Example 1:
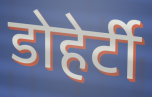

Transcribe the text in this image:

डोहेर्टी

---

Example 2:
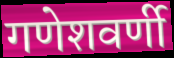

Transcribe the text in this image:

गणेशवर्णी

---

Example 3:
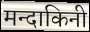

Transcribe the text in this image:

मन्दाकिनी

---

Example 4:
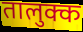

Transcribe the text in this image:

तालुक्क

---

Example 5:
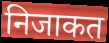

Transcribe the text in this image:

निजाकत